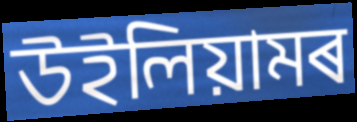
উইলিয়ামৰ